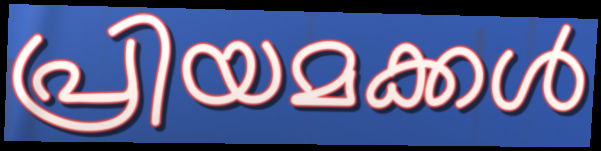
പ്രിയമക്കൾ